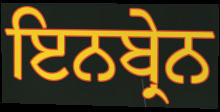
ਇਨਬ੍ਰੇਨ